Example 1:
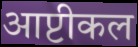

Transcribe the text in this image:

आप्टीकल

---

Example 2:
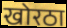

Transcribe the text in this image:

खोरठा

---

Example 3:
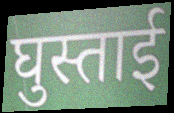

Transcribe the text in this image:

घुस्ताई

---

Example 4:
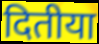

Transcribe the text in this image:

दितीया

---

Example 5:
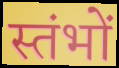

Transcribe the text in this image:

स्तंभों